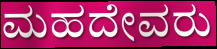
ಮಹದೇವರು